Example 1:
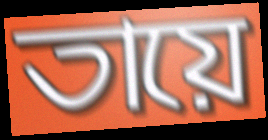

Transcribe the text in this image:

তায়ে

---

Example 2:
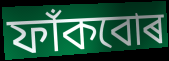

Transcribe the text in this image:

ফাঁকবোৰ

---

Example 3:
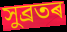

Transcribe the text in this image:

সুব্ৰতৰ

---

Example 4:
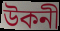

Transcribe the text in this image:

উকনী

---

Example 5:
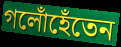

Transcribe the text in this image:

গলোঁহেঁতেন